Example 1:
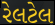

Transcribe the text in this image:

રેલટેલ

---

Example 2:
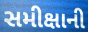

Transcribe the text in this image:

સમીક્ષાની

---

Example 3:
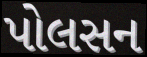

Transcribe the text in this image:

પોલસન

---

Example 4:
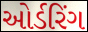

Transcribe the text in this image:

ઓર્ડરિંગ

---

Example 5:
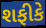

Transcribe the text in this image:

શફીકે